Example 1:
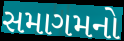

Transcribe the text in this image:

સમાગમનો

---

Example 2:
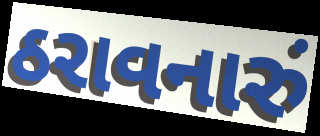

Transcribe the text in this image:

ઠરાવનારું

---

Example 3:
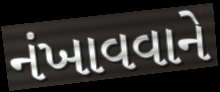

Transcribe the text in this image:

નંખાવવાને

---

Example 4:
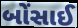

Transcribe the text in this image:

બોંસાઈ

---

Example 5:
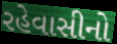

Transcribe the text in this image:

રહેવાસીનો